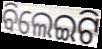
ବିଲେଇଟି